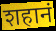
शहानं